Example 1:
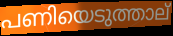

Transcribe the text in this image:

പണിയെടുത്താല്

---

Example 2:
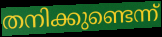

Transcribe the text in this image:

തനിക്കുണ്ടെന്ന്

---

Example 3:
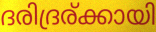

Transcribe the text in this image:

ദരിദ്രര്ക്കായി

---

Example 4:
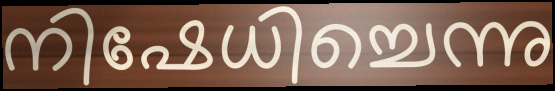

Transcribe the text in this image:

നിഷേധിച്ചെന്നു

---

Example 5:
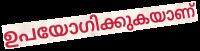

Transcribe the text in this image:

ഉപയോഗിക്കുകയാണ്